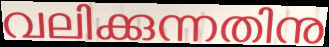
വലിക്കുന്നതിനു